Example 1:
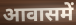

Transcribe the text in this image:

आवासमें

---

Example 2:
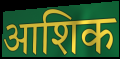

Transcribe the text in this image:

आशिक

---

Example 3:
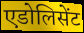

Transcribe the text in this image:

एडोलिसेंट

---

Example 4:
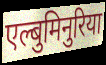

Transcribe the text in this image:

एल्बुमिनुरिया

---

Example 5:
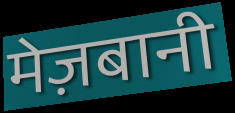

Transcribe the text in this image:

मेज़बानी